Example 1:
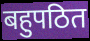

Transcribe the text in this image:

बहुपठित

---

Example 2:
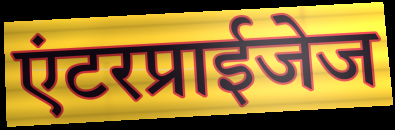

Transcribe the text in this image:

एंटरप्राईजेज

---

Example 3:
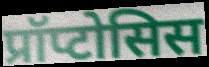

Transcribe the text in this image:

प्रॉप्टोसिस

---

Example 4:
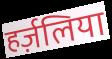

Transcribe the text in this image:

हर्ज़लिया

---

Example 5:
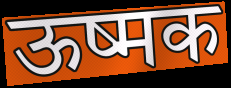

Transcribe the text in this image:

ऊष्मक